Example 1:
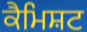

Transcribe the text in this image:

ਕੈਮਿਸ਼ਟ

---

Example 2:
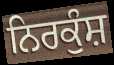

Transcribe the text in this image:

ਨਿਰਕੁੰਸ਼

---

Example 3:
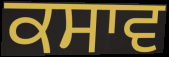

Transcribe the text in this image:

ਕਸਾਵ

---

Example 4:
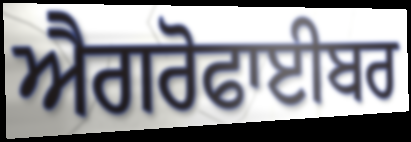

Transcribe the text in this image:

ਐਗਰੋਫਾਈਬਰ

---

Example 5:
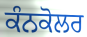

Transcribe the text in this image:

ਕੰਨਕੋਲਰ